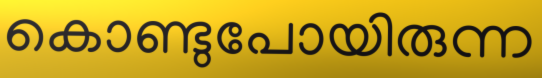
കൊണ്ടുപോയിരുന്ന